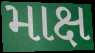
માક્ષ